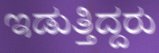
ಇಡುತ್ತಿದ್ದರು